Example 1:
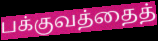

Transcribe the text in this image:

பக்குவத்தைத்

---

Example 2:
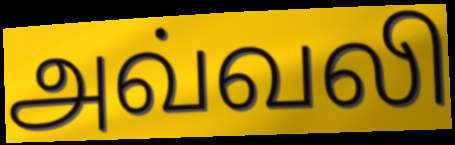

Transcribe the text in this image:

அவ்வலி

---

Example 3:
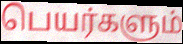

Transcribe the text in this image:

பெயர்களும்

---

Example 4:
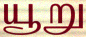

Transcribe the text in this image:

யூறு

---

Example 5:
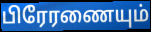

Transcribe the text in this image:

பிரேரணையும்